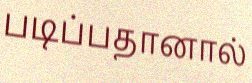
படிப்பதானால்